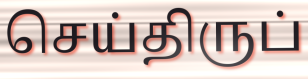
செய்திருப்